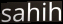
sahih